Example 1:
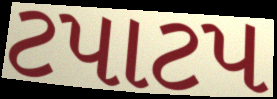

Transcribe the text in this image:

ટપાટપ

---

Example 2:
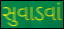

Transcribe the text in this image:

સુવાડવાં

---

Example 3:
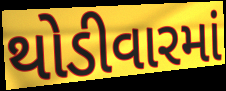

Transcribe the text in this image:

થોડીવારમાં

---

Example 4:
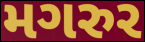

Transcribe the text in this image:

મગરુર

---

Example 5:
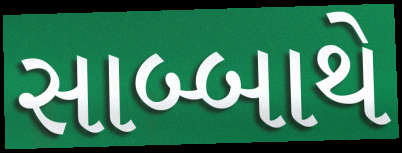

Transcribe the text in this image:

સાબ્બાથે